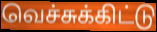
வெச்சுக்கிட்டு